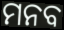
ମନବ